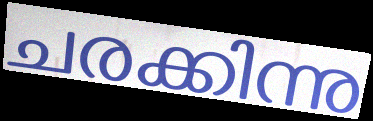
ചരക്കിന്നു